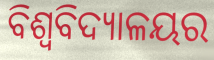
ବିଶ୍ୱବିଦ୍ୟାଳୟର